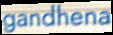
gandhena